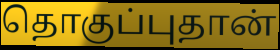
தொகுப்புதான்